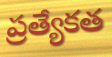
ప్రత్యేకత